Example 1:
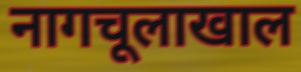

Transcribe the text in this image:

नागचूलाखाल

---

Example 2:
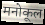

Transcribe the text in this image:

मनोकूल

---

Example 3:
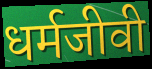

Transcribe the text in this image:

धर्मजीवी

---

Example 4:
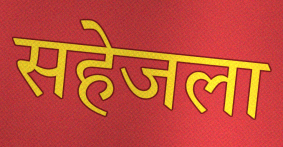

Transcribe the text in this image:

सहेजला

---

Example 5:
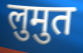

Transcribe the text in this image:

लुमुत